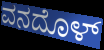
ವನದೊಳ್